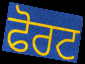
ਫੋਰਟ